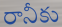
రానీకు